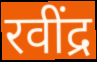
रवींद्र